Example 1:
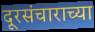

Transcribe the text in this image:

दूरसंचाराच्या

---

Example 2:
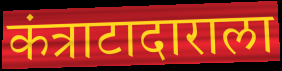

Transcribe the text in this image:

कंत्राटादाराला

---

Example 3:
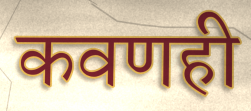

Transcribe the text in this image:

कवणही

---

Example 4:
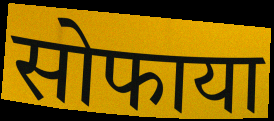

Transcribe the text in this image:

सोफाया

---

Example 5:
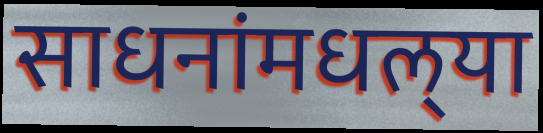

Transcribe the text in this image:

साधनांमधल्या